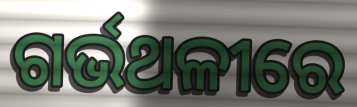
ଗର୍ଭଥଳୀରେ